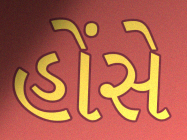
હોંસે